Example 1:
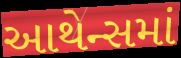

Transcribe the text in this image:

આથેન્સમાં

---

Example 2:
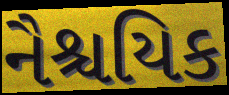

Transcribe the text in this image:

નૈશ્ચયિક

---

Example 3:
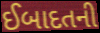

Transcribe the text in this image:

ઈબાદતની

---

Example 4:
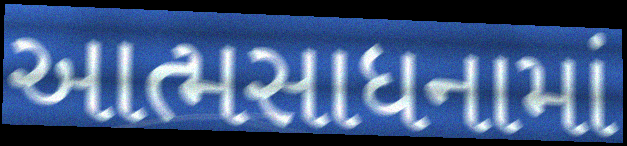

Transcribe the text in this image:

આત્મસાધનામાં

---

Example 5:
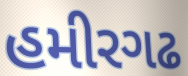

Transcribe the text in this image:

હમીરગઢ